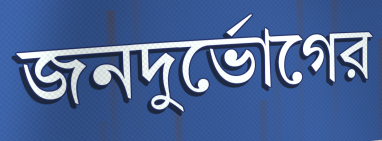
জনদুর্ভোগের